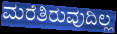
ಮರೆತಿರುವುದಿಲ್ಲ